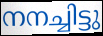
നനച്ചിട്ടു